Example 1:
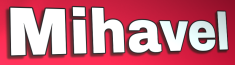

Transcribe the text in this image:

Mihavel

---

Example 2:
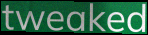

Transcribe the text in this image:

tweaked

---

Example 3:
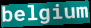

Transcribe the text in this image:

belgium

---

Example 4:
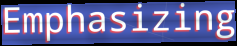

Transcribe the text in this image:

Emphasizing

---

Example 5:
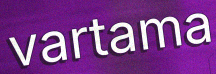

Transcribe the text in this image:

vartama